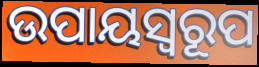
ଉପାୟସ୍ୱରୂପ